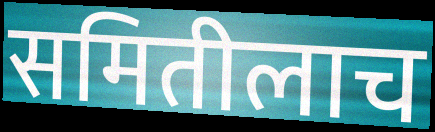
समितीलाच